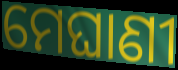
ମେଘାଣୀ